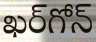
ఖర్‌గోన్